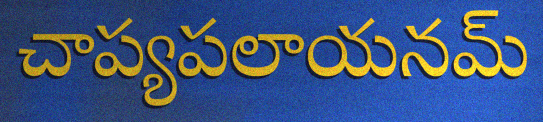
చాప్యపలాయనమ్